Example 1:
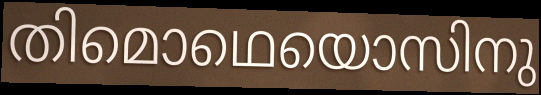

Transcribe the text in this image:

തിമൊഥെയൊസിനു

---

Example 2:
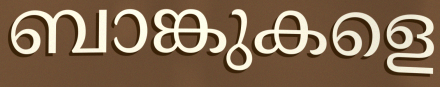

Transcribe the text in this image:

ബാങ്കുകളെ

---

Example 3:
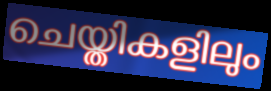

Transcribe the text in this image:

ചെയ്തികളിലും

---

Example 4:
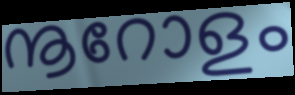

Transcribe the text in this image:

നൂറോളം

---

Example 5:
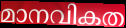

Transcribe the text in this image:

മാനവികത